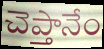
చెప్తానేం